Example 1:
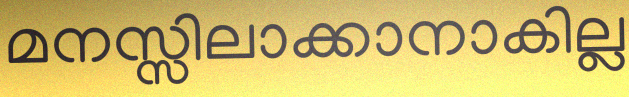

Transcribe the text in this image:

മനസ്സിലാക്കാനാകില്ല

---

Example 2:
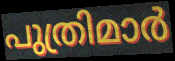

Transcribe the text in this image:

പുത്രിമാർ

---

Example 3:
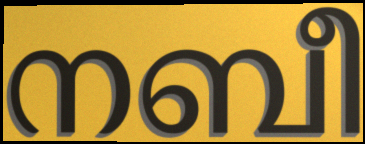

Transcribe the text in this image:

നബീ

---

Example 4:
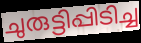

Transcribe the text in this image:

ചുരുട്ടിപ്പിടിച്ച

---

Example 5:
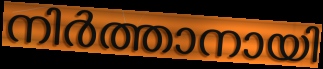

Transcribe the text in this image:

നിർത്താനായി